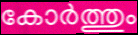
കോർത്തും